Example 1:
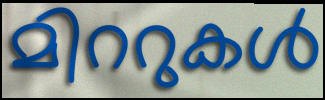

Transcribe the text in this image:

മിററുകൾ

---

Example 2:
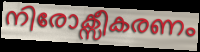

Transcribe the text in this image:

നിരോക്സീകരണം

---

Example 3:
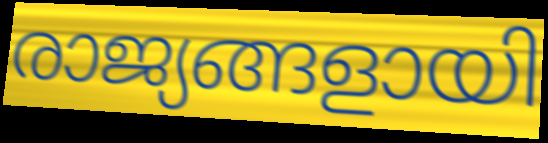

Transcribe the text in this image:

രാജ്യങ്ങളായി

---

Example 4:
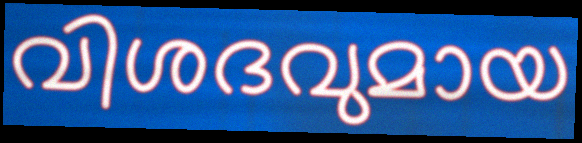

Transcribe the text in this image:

വിശദവുമായ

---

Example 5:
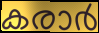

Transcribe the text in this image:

കരാർ